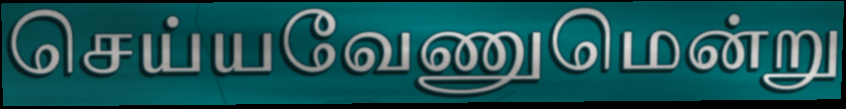
செய்யவேணுமென்று